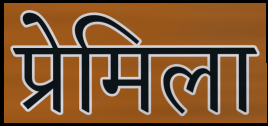
प्रेमिला